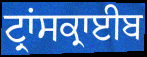
ਟ੍ਰਾਂਸਕ੍ਰਾਈਬ